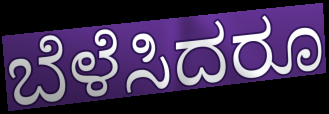
ಬೆಳೆಸಿದರೂ